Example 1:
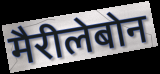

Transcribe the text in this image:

मैरीलेबोन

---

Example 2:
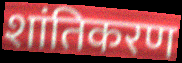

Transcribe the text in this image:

शांतिकरण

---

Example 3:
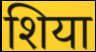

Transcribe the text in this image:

शिया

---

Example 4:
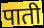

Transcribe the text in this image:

पाती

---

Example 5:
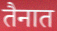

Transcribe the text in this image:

तैनात